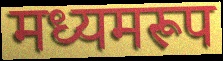
मध्यमरूप